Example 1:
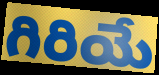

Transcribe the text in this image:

గిరియే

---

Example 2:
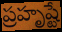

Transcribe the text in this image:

ప్రహృష్టే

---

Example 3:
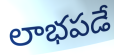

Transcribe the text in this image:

లాభపడే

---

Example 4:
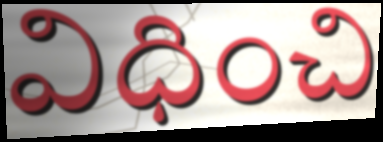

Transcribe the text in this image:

విధించి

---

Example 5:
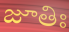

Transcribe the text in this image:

జూతిః